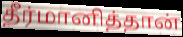
தீர்மானித்தான்